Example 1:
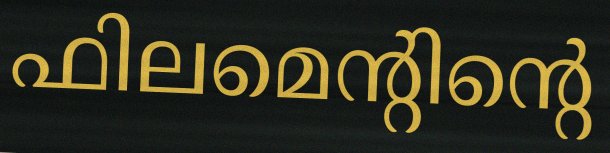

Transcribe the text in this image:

ഫിലമെന്റിന്റെ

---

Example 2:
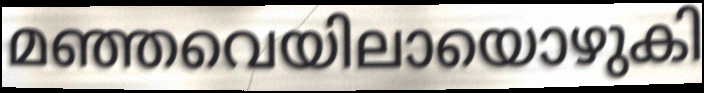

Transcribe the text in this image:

മഞ്ഞവെയിലായൊഴുകി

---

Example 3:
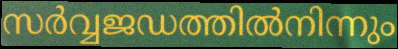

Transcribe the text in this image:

സർവ്വജഡത്തിൽനിന്നും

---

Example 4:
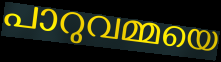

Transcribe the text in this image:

പാറുവമ്മയെ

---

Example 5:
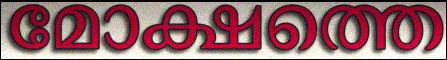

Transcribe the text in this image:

മോക്ഷത്തെ